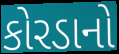
કોરડાનો